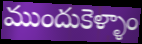
ముందుకెళ్ళాం